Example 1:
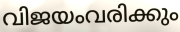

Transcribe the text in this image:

വിജയംവരിക്കും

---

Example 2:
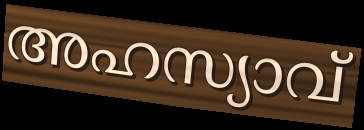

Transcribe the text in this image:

അഹസ്യാവ്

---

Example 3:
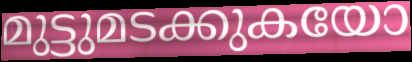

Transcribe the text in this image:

മുട്ടുമടക്കുകയോ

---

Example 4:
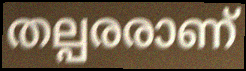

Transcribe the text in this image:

തല്പരരാണ്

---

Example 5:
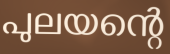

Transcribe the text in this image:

പുലയന്റെ